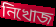
নিখোজ